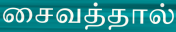
சைவத்தால்